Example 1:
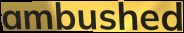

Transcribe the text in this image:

ambushed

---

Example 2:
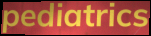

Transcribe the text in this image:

pediatrics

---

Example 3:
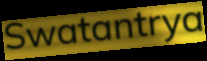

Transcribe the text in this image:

Swatantrya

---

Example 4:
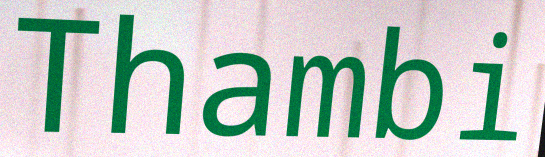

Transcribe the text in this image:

Thambi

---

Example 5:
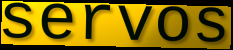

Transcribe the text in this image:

servos